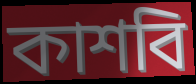
কাশবি